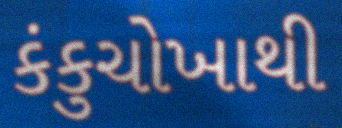
કંકુચોખાથી